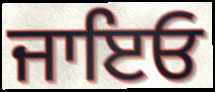
ਜਾਇਓ